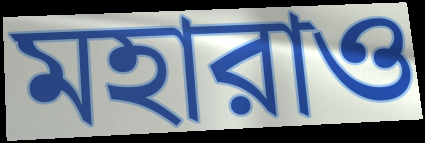
মহারাও